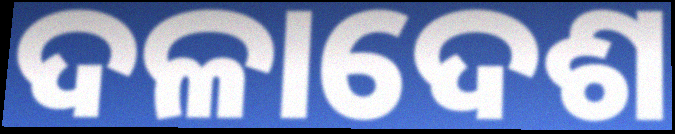
ଦଳାଦେଶ